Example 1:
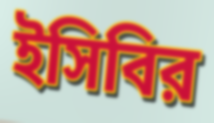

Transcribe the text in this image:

ইসিবির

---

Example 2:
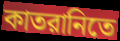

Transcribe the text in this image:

কাতরানিতে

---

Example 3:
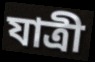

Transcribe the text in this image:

যাত্রী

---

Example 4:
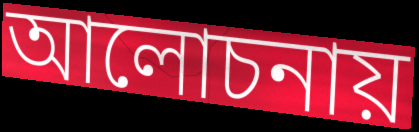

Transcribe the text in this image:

আলোচনায়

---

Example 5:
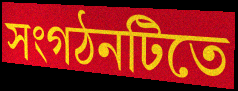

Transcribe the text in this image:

সংগঠনটিতে